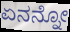
ಏನನ್ನೋ